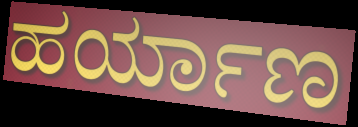
ಹರ್ಯಾಣ